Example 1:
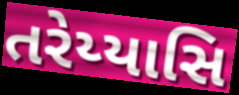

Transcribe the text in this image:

તરેય્યાસિ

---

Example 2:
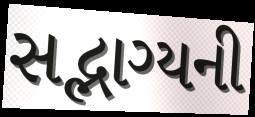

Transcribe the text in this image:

સદ્ભાગ્યની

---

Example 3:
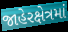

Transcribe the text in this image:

જાહેરક્ષેત્રમાં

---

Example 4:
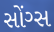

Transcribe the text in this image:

સોંગ્સ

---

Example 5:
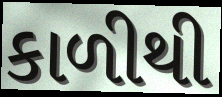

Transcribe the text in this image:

કાળીથી